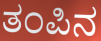
ತಂಪಿನ